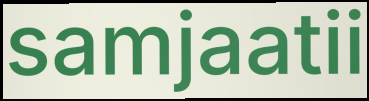
samjaatii